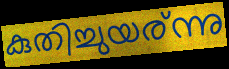
കുതിച്ചുയര്ന്നു